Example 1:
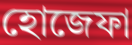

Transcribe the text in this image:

হোজেফা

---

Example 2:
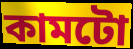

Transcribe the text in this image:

কামটো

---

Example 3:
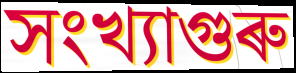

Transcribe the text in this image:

সংখ্যাগুৰু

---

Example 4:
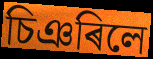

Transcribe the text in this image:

চিঞৰিলে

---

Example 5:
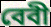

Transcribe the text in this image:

বেবী